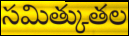
సమిత్కుతల